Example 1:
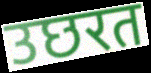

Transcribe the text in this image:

उछरत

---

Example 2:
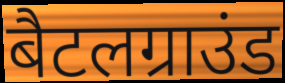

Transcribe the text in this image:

बैटलग्राउंड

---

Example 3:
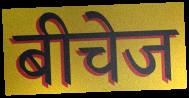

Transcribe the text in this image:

बीचेज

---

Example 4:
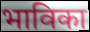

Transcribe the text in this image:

भाविका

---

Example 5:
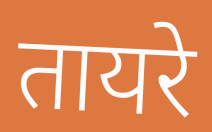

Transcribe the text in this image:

तायरे